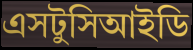
এসটুসিআইডি